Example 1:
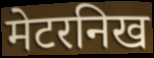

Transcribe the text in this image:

मेटरनिख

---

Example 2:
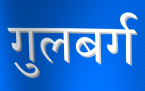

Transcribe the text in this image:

गुलबर्ग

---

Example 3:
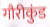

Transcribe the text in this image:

गौरीकुंड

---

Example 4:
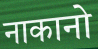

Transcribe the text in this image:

नाकानो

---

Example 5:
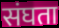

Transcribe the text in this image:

संघता